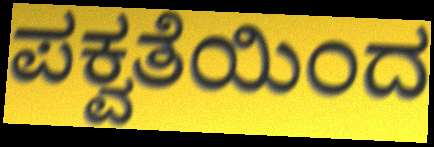
ಪಕ್ವತೆಯಿಂದ